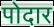
पोदार